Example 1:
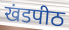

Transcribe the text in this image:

खंडपीठ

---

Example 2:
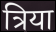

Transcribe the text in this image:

त्रिया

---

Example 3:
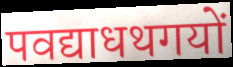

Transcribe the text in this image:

पवद्याधथगयों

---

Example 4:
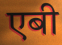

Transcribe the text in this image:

एबी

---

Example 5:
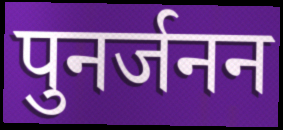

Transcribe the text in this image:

पुनर्जनन